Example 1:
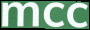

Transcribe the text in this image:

mcc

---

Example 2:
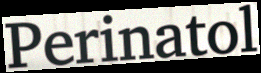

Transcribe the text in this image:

Perinatol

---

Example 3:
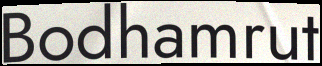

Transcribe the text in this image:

Bodhamrut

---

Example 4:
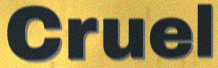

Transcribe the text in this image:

Cruel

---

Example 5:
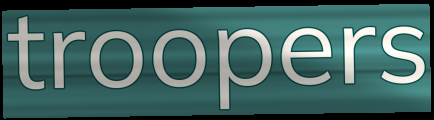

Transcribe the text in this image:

troopers